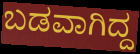
ಬಡವಾಗಿದ್ದ